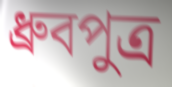
ধ্রুবপুত্র